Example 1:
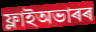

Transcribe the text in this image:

ফ্লাইঅভাৰৰ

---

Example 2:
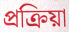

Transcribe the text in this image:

প্ৰক্ৰিয়া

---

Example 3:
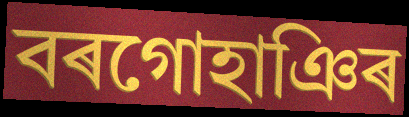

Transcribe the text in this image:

বৰগোহাঞিৰ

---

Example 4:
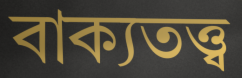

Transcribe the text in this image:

বাক্যতত্ত্ব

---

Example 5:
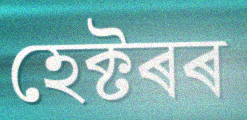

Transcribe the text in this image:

হেক্টৰৰ